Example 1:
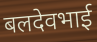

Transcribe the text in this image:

बलदेवभाई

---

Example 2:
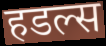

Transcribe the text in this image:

हडल्स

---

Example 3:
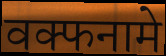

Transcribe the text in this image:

वक्फनामे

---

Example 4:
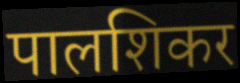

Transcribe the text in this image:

पालशिकर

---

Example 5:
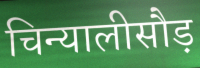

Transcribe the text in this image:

चिन्यालीसौड़